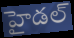
హైడల్